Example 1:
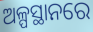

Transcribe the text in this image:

ଅଳ୍ପସ୍ଥାନରେ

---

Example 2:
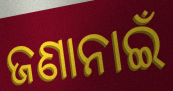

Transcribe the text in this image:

ଜଣାନାଇଁ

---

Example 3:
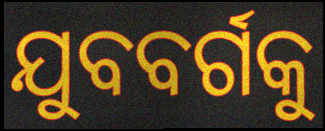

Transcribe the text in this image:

ଯୁବବର୍ଗକୁ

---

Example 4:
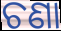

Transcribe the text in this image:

ଚଣା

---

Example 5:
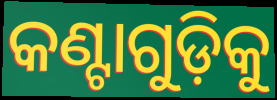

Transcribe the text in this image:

କଣ୍ଟାଗୁଡ଼ିକୁ